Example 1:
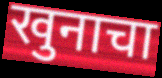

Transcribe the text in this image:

खुनाचा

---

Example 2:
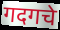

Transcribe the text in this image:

गदगचे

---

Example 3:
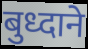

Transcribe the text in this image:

बुध्दाने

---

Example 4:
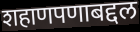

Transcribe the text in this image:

शहाणपणाबद्दल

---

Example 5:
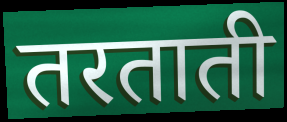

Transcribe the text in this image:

तरताती